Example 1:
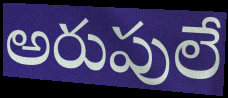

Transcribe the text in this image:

అరుపులే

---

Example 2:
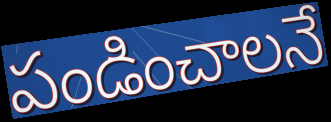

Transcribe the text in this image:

పండించాలనే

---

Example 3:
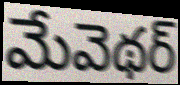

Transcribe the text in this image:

మేవెథర్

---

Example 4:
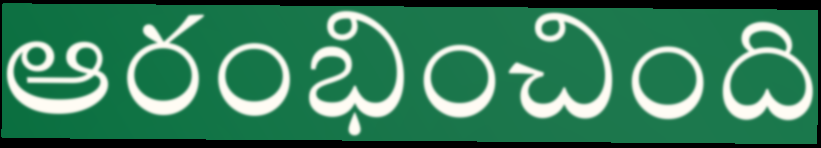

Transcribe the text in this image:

ఆరంభించింది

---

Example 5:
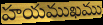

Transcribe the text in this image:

హయముఖము